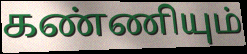
கண்ணியும்